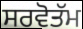
ਸਰਵੋਤੱਮ